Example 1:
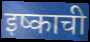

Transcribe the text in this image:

इष्काची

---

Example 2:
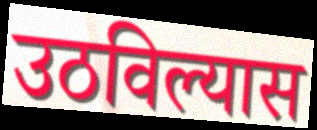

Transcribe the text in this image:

उठविल्यास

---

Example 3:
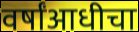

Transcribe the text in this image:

वर्षांआधीचा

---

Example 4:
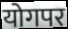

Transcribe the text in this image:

योगपर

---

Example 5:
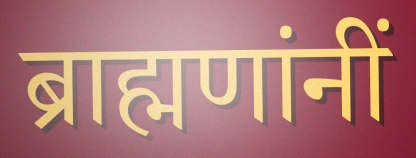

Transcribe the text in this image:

ब्राह्मणांनीं